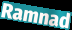
Ramnad